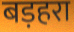
बड़हरा